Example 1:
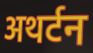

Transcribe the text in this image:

अथर्टन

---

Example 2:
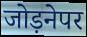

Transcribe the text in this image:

जोड़नेपर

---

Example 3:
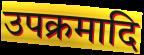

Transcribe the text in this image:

उपक्रमादि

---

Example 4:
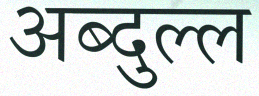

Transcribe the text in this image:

अब्दुल्ल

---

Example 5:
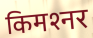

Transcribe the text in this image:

किमश्नर